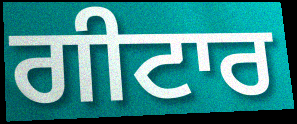
ਗੀਟਾਰ